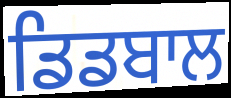
ਡਿਡਬਾਲ